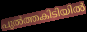
പുൽത്തകിടിയിൽ